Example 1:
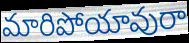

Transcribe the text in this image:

మారిపోయావురా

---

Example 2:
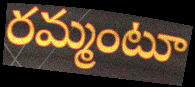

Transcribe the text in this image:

రమ్మంటూ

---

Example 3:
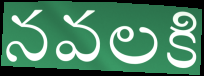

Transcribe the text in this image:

నవలకి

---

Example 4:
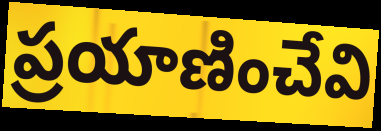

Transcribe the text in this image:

ప్రయాణించేవి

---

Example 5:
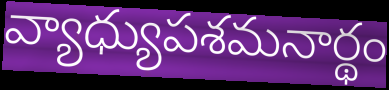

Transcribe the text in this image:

వ్యాధ్యుపశమనార్థం